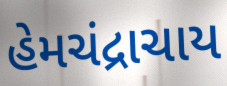
હેમચંદ્રાચાય